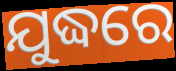
ଯୁଦ୍ଧରେ